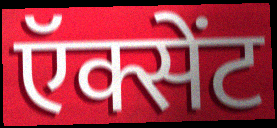
ऍक्सेंट